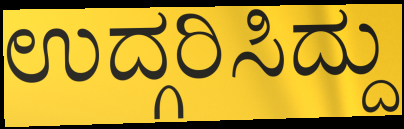
ಉದ್ಗರಿಸಿದ್ದು